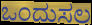
ಒಂದುಸಲ